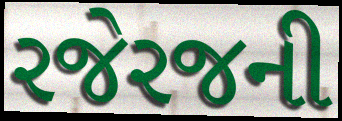
રજેરજની